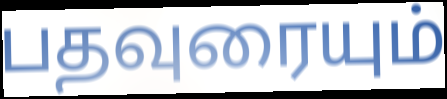
பதவுரையும்